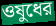
ওষুধের